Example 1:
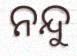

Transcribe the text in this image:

ନନ୍ଦୁ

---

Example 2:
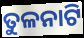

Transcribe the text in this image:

ତୁଳନାଟି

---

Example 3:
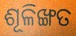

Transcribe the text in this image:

ଶୂଳିଙ୍ଖତ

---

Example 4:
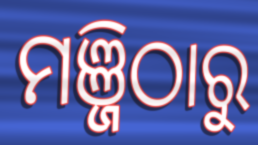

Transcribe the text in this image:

ମଞ୍ଜିଠାରୁ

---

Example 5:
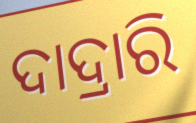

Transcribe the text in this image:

ଦାଦ୍ରାରି